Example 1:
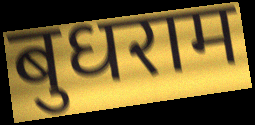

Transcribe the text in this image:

बुधराम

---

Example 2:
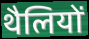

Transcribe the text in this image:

थैलियों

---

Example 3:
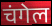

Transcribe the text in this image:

चंगेल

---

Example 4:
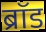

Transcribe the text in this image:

ब्रॉड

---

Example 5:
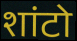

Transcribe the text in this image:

शांटो